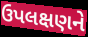
ઉપલક્ષણને